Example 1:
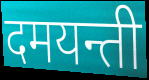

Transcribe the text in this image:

दमयन्ती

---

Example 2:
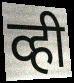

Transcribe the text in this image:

व्‍ही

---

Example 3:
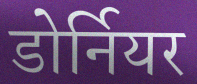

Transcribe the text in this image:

डोर्नियर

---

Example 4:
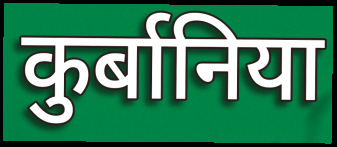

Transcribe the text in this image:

कुर्बानिया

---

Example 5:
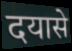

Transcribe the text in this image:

दयासे